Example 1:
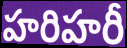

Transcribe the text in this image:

హరిహరీ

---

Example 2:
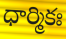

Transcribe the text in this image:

ధార్మికః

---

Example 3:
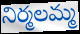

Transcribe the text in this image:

నిర్మలమ్మ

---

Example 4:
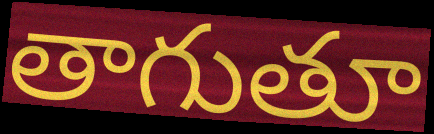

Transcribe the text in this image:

తాగుతూ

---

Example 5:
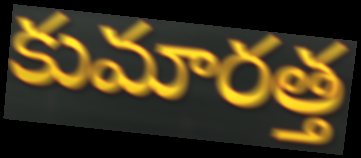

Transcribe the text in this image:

కుమారత్త